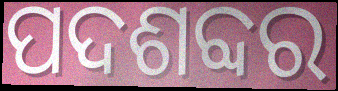
ପଦଶବ୍ଦର